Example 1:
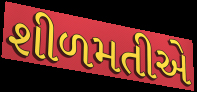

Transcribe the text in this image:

શીળમતીએ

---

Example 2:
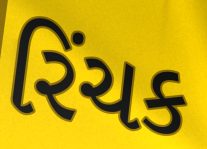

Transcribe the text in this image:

રિંચક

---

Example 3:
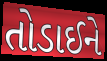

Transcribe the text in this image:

તોડાઈને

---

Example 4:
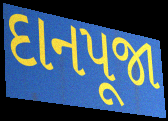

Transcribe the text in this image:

દાનપૂજા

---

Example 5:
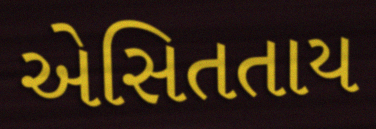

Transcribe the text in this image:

એસિતતાય